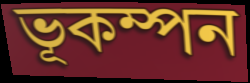
ভূকম্পন